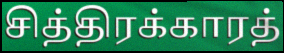
சித்திரக்காரத்